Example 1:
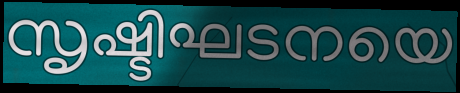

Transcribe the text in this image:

സൃഷ്ടിഘടനയെ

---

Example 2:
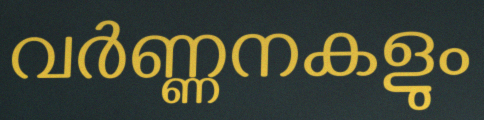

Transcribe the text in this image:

വർണ്ണനകളും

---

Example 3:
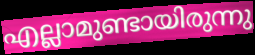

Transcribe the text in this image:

എല്ലാമുണ്ടായിരുന്നു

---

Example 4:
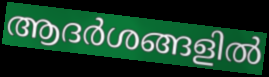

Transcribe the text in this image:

ആദർശങ്ങളിൽ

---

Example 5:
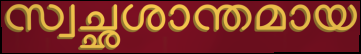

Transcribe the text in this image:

സ്വച്ഛശാന്തമായ